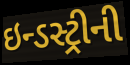
ઇન્ડસ્ટ્રીની